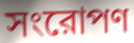
সংরোপণ